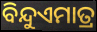
ବିନ୍ଦୁଏମାତ୍ର